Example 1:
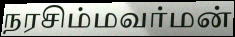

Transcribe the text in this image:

நரசிம்மவர்மன்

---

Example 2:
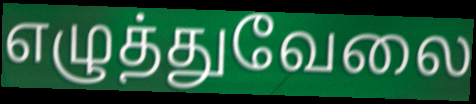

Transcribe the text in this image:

எழுத்துவேலை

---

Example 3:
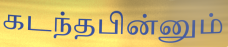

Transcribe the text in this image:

கடந்தபின்னும்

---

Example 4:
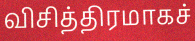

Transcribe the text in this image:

விசித்திரமாகச்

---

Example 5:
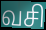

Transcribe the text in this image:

வசி